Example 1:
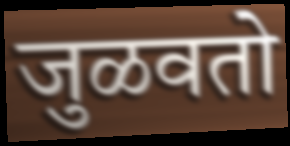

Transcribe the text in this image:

जुळवतो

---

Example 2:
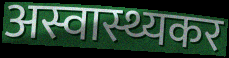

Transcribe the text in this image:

अस्वास्थ्यकर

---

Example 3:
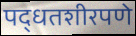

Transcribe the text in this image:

पद्धतशीरपणे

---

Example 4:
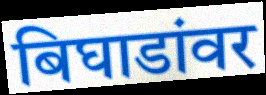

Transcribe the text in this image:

बिघाडांवर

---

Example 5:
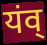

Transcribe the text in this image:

यंव्